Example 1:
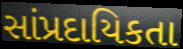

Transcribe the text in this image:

સાંપ્રદાયિકતા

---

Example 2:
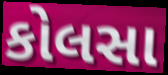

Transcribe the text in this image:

કોલસા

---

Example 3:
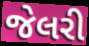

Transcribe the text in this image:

જેલરી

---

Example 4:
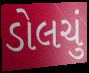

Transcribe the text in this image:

ડોલચું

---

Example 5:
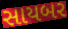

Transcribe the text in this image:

સાયબર